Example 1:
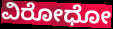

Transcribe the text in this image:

ವಿರೋಧೋ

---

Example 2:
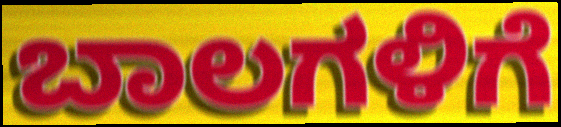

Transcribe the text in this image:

ಬಾಲಗಳಿಗೆ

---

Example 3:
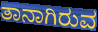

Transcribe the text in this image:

ತಾನಾಗಿರುವ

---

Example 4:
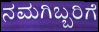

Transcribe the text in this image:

ನಮಗಿಬ್ಬರಿಗೆ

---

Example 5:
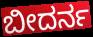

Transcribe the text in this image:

ಬೀದರ್ನ